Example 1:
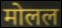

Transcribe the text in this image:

मोलल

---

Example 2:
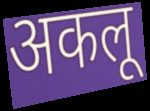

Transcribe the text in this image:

अकलू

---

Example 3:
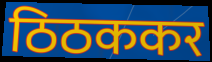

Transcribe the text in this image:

ठिठककर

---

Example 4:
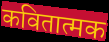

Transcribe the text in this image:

कवितात्मक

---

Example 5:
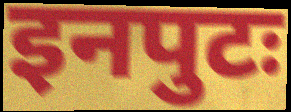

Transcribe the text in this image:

इनपुटः